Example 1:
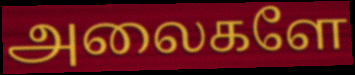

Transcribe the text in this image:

அலைகளே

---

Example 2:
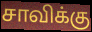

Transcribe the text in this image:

சாவிக்கு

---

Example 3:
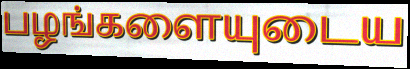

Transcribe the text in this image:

பழங்களையுடைய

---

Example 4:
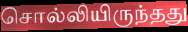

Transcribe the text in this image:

சொல்லியிருந்தது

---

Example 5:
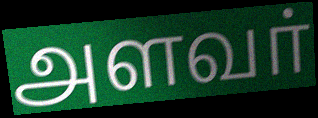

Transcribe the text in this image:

அளவர்